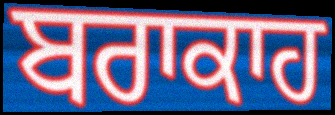
ਬਰਾਕਾਹ